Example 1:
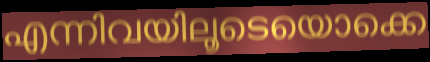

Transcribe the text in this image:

എന്നിവയിലൂടെയൊക്കെ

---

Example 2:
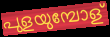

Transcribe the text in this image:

പുളയുമ്പോള്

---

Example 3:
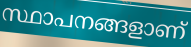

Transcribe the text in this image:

സ്ഥാപനങ്ങളാണ്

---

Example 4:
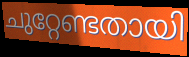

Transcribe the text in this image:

ചുറ്റേണ്ടതായി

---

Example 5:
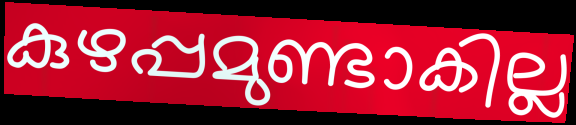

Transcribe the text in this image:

കുഴപ്പമുണ്ടാകില്ല